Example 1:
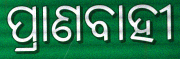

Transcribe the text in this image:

ପ୍ରାଣବାହୀ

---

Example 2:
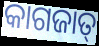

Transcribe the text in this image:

କାଗଜାତ୍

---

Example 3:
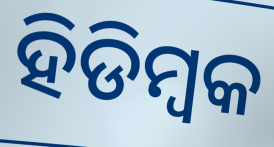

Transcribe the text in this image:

ହିଡିମ୍ବକ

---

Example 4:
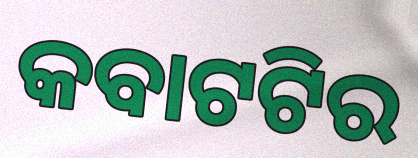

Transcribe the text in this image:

କବାଟଟିର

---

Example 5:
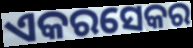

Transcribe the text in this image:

ଏକରସେକର